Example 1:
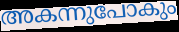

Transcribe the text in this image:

അകന്നുപോകും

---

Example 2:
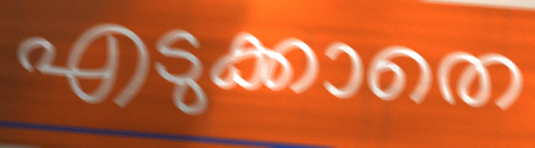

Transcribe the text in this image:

എടുക്കാതെ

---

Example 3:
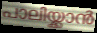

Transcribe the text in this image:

പാലിയ്ക്കാൻ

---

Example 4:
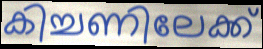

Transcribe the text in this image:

കിച്ചണിലേക്ക്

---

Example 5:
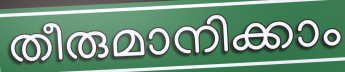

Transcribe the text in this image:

തീരുമാനിക്കാം